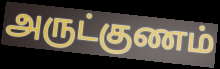
அருட்குணம்